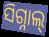
ସିଗ୍ନାଲ୍